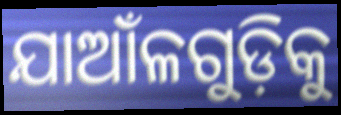
ଯାଆଁଳଗୁଡ଼ିକୁ